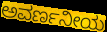
ಅವರ್ಣನೀಯ